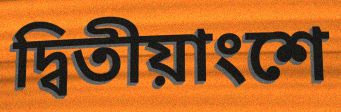
দ্বিতীয়াংশে